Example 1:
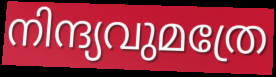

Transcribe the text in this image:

നിന്ദ്യവുമത്രേ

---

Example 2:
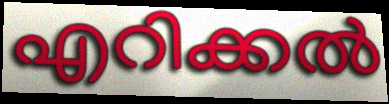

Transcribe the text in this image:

എറിക്കൽ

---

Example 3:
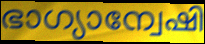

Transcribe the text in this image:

ഭാഗ്യാന്വേഷി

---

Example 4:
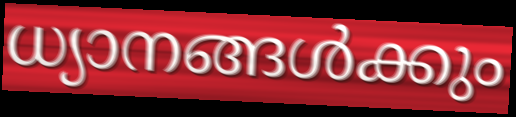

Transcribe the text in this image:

ധ്യാനങ്ങൾക്കും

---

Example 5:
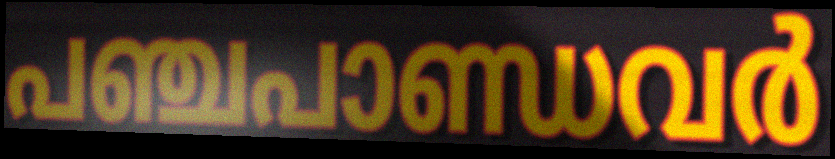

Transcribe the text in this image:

പഞ്ചപാണ്ഡവർ